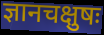
ज्ञानचक्षुषः